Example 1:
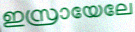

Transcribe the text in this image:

ഇസ്രായേലേ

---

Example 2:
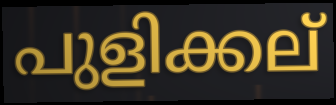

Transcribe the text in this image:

പുളിക്കല്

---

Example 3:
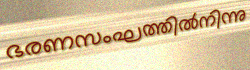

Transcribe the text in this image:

ഭരണസംഘത്തിൽനിന്നു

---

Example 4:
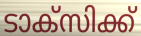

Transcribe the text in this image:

ടാക്സിക്ക്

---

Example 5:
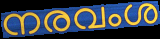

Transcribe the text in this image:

നരവംശ